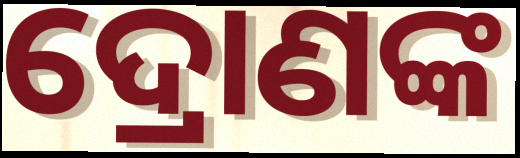
ଦ୍ରୋଣଙ୍କ